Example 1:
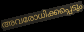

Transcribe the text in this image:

അവരോധിക്കപ്പെടും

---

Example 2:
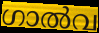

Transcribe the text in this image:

ഗാൽവ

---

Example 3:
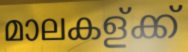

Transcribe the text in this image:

മാലകള്ക്ക്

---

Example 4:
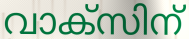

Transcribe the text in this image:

വാക്സിന്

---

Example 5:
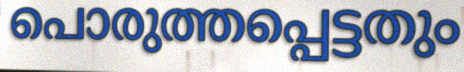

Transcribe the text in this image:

പൊരുത്തപ്പെട്ടതും